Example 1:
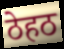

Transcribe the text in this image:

ठेहठ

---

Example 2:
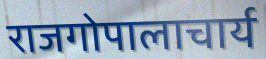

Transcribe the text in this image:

राजगोपालाचार्य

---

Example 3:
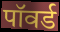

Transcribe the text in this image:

पॉवर्ड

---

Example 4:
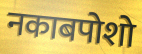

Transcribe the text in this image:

नकाबपोशो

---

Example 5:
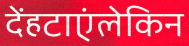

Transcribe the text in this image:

देंहटाएंलेकिन